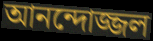
আনন্দোজ্জল